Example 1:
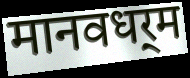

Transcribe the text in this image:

मानवधर्म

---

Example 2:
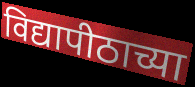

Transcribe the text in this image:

विद्यापीठाच्या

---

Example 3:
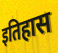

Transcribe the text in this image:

इतिहास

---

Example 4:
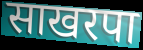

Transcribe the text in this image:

साखरपा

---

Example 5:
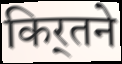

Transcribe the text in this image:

किर्तने